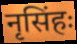
नृसिंहः